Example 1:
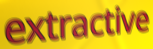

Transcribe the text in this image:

extractive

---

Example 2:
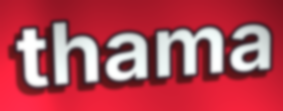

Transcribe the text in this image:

thama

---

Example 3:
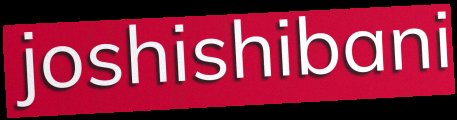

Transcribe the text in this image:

joshishibani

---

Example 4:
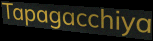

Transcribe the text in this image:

Tapagacchiya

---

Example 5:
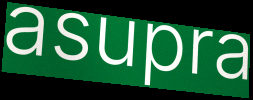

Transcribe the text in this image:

asupra